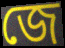
জে